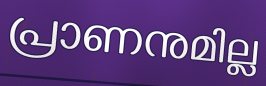
പ്രാണനുമില്ല